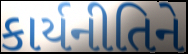
કાર્યનીતિને